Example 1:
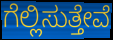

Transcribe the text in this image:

ಗೆಲ್ಲಿಸುತ್ತೇವೆ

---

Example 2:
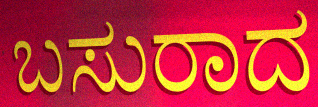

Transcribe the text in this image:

ಬಸುರಾದ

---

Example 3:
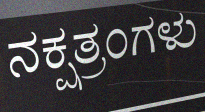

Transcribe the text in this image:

ನಕ್ಷತ್ರಂಗಳು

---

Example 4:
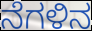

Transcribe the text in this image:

ನೆಗಳಿನ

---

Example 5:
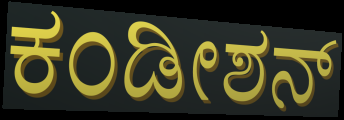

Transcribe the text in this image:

ಕಂಡೀಶನ್